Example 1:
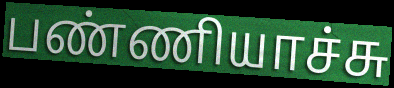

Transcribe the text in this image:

பண்ணியாச்சு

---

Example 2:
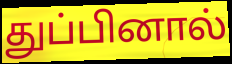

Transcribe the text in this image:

துப்பினால்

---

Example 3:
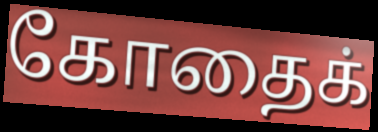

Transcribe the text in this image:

கோதைக்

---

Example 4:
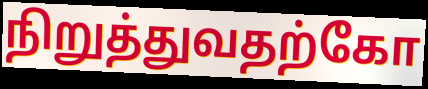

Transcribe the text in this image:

நிறுத்துவதற்கோ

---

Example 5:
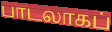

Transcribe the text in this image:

பாடலாகப்